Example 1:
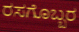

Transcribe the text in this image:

ರಸಗೊಬ್ಬರ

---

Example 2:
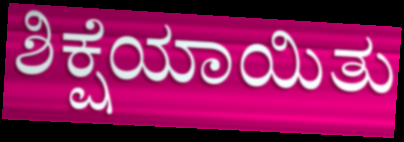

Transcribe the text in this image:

ಶಿಕ್ಷೆಯಾಯಿತು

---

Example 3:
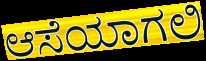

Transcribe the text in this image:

ಆಸೆಯಾಗಲಿ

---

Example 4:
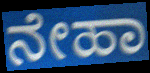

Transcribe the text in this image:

ನೇಹಾ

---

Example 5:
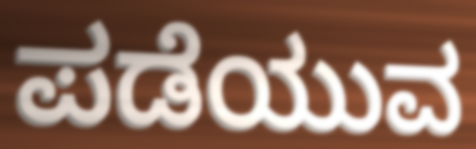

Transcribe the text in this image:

ಪಡೆಯುವ